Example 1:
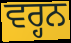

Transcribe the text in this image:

ਵਰ੍ਹਨ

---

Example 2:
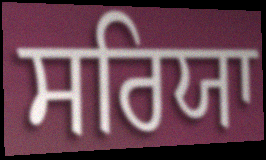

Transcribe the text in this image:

ਸਰਿਯਾ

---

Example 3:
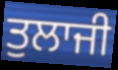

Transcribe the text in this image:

ਤੁਲਾਜੀ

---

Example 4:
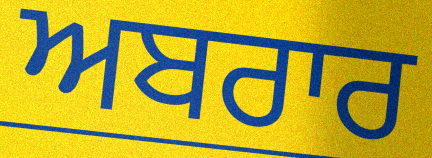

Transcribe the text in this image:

ਅਬਰਾਰ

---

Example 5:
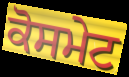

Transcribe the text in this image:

ਕੋਸਮੇਟ